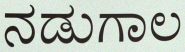
ನಡುಗಾಲ